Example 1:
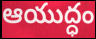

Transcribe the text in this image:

ఆయుద్ధం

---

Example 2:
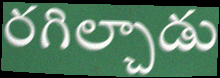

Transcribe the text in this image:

రగిల్చాడు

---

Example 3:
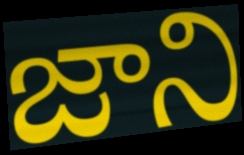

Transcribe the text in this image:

జాని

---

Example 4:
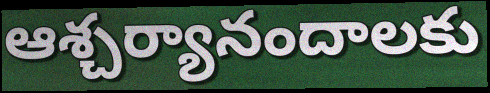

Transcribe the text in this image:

ఆశ్చర్యానందాలకు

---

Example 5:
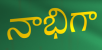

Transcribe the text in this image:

నాభిగా